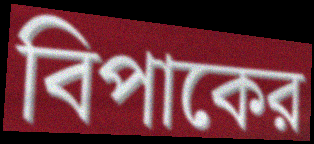
বিপাকের